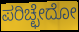
ಪರಿಚ್ಛೇದೋ